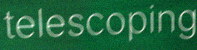
telescoping